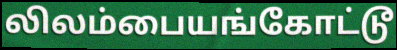
லிலம்பையங்கோட்டூ